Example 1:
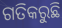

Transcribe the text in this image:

ଗତିକରୁଛି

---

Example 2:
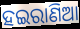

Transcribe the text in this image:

ହଇରାଣିଆ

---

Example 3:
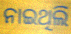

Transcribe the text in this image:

ନାଇଥିଲି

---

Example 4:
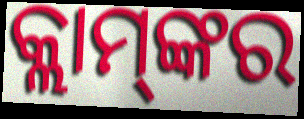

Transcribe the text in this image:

କ୍ଲାମ୍‌ଙ୍କର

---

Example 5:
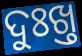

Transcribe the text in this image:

ଦୁଃଖ୍ତ